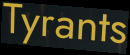
Tyrants